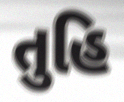
તુહિ